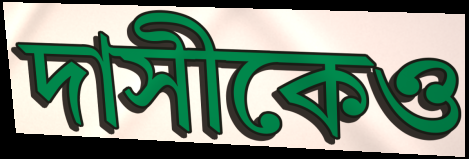
দাসীকেও